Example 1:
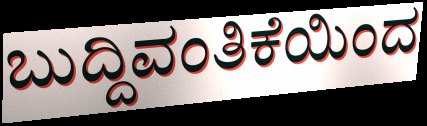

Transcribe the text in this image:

ಬುದ್ದಿವಂತಿಕೆಯಿಂದ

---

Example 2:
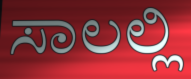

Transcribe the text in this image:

ಸಾಲಲ್ಲಿ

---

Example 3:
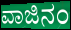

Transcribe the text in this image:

ವಾಜಿನಂ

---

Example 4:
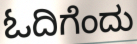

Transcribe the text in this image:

ಓದಿಗೆಂದು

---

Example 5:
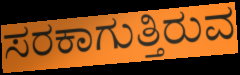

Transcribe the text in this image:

ಸರಕಾಗುತ್ತಿರುವ